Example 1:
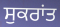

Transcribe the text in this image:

ਸੁਕਰਾਂਤ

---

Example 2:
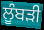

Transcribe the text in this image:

ਲੂੰਬੜੀ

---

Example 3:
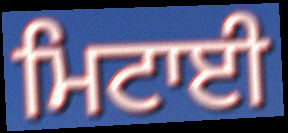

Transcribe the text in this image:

ਮਿਟਾਈ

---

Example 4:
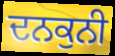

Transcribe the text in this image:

ਦਨਕੁਨੀ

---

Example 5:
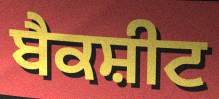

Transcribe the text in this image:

ਬੈਕਸ਼ੀਟ